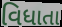
વિધાતા